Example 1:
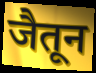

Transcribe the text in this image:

जैतून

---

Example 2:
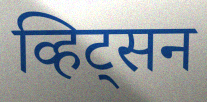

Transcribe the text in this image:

व्हिट्सन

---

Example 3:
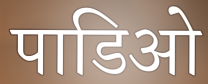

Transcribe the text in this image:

पाडिओ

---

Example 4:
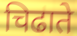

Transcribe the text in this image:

चिढाते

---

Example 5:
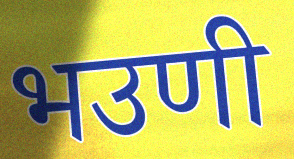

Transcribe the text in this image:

भउणी